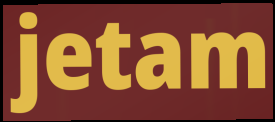
jetam